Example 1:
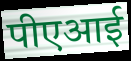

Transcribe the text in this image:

पीएआई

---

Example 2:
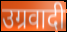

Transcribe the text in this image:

उग्रवादी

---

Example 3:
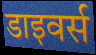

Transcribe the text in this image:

डाइवर्स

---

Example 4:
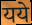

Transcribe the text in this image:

यये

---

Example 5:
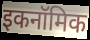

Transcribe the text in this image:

इकनॉमिक